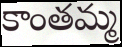
కాంతమ్మ